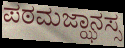
ಪಠಮಜ್ಝಾನಸ್ಸ